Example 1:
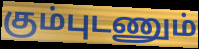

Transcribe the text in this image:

கும்புடணும்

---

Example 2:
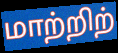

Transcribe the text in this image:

மாற்றிற்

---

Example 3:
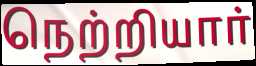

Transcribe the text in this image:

நெற்றியார்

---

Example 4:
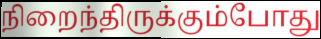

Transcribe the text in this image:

நிறைந்திருக்கும்போது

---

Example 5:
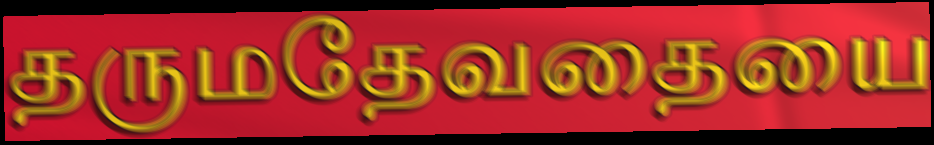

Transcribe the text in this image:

தருமதேவதையை